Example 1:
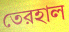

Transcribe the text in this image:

তেরহাল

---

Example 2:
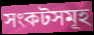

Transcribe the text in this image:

সংকটসমূহ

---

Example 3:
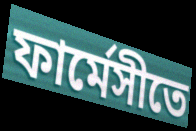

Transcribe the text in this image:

ফার্মেসীতে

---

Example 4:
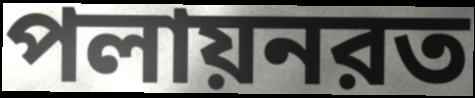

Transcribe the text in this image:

পলায়নরত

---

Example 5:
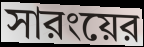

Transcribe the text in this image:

সারংয়ের